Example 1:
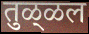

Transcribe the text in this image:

तुळ्‌ळल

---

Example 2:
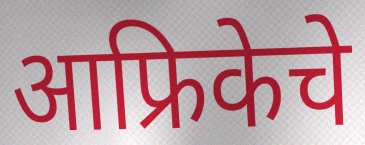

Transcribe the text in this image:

आफ्रिकेचे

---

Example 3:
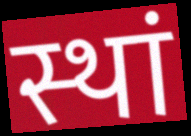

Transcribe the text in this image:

स्थां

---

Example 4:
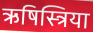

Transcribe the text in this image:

ऋषिस्त्रिया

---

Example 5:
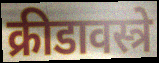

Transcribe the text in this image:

क्रीडावस्त्रे